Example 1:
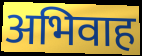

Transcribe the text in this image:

अभिवाह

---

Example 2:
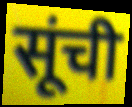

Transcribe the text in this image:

सूंची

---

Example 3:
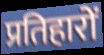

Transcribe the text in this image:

प्रतिहारों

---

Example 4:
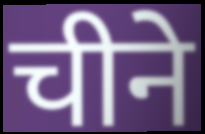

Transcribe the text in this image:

चीने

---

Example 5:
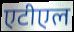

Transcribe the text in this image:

एटीएल